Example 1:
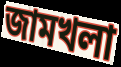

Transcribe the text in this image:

জামখলা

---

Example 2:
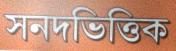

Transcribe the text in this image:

সনদভিত্তিক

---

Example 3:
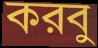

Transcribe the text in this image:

করবু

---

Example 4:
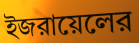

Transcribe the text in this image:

ইজরায়েলের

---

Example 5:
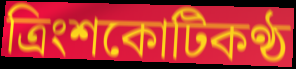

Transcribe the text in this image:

ত্রিংশকোটিকণ্ঠ